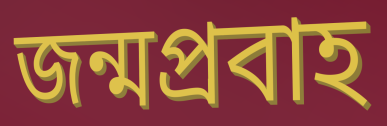
জন্মপ্রবাহ